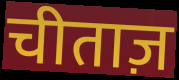
चीताज़